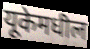
यूकेमधील